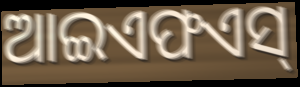
ଆଇଏଫଏସ୍